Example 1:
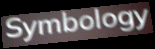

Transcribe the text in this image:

Symbology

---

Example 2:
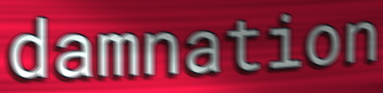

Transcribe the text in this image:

damnation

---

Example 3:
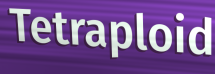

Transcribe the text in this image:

Tetraploid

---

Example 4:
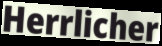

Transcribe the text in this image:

Herrlicher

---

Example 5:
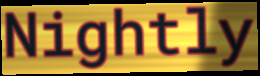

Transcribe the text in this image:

Nightly